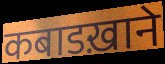
कबाडख़ाने